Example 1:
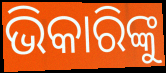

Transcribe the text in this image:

ଭିକାରିଙ୍କୁ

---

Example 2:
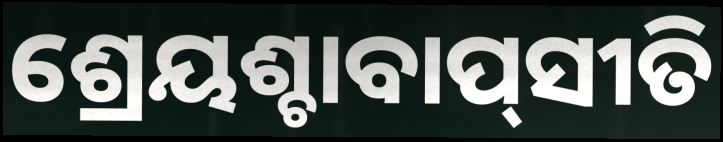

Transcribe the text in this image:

ଶ୍ରେୟଶ୍ଚାବାପ୍‌ସୀତି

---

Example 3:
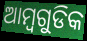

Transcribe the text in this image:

ଆମ୍ବଗୁଡିକ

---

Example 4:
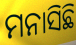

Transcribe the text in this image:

ମନାସିଛି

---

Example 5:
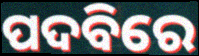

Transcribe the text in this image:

ପଦବିରେ